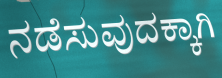
ನಡೆಸುವುದಕ್ಕಾಗಿ